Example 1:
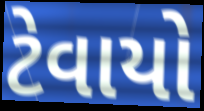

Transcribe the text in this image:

ટેવાયો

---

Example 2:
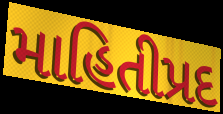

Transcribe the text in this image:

માહિતીપ્રદ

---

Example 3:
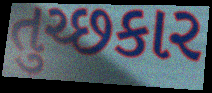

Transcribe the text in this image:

તુચ્છકાર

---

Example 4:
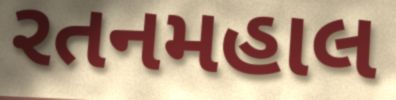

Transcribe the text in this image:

રતનમહાલ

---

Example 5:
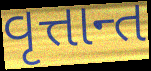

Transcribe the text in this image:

વૃત્તાન્ત